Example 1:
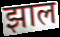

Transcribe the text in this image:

झाल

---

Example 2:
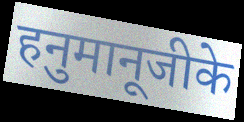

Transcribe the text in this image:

हनुमानूजीके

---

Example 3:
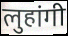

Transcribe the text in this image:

लुहांगी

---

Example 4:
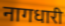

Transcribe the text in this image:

नागधारी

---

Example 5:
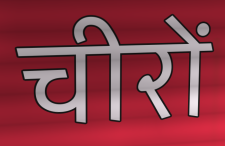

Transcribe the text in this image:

चीरों